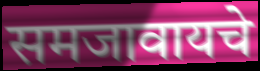
समजावायचे